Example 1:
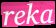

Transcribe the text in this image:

reka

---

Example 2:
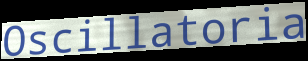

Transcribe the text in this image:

Oscillatoria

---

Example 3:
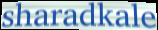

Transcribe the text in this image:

sharadkale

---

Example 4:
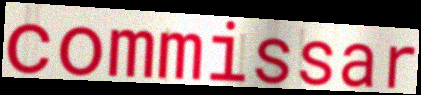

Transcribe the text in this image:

commissar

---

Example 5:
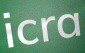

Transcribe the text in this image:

icra